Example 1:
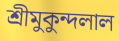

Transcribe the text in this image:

শ্রীমুকুন্দলাল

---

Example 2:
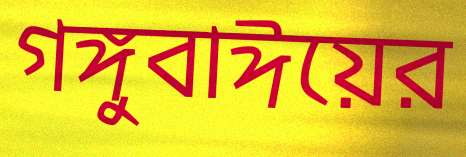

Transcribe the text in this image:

গঙ্গুবাঈয়ের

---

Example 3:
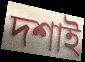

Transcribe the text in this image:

দশাই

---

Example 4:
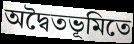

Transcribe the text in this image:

অদ্বৈতভূমিতে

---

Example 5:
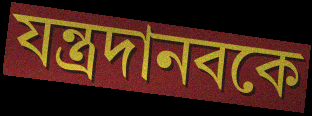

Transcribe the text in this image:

যন্ত্রদানবকে